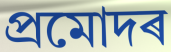
প্ৰমোদৰ